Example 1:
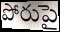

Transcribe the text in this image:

పోరుపై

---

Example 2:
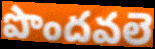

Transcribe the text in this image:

పొందవలె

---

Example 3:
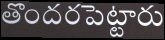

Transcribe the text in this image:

తొందరపెట్టారు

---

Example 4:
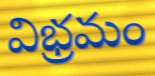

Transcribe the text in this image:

విభ్రమం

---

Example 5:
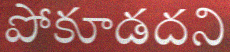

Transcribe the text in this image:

పోకూడదని